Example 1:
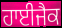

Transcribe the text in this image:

ਹਾਈਜੈਕ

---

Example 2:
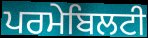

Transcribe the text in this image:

ਪਰਮੇਬਿਲਟੀ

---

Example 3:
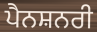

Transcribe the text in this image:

ਪੈਨਸ਼ਨਰੀ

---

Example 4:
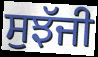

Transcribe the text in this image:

ਸੁਝੱਜੀ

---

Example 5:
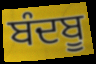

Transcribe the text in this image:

ਬੰਦਬੂ